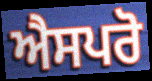
ਐਸਪਰੋ